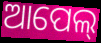
ଆପେଲ୍